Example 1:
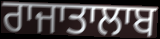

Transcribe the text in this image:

ਰਾਜਾਤਾਲਾਬ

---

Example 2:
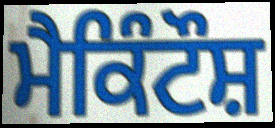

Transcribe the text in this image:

ਮੈਕਿੰਟੌਸ਼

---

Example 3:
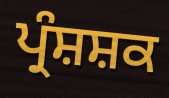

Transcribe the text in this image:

ਪ੍ਰੰਸ਼ਸ਼ਕ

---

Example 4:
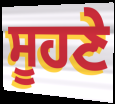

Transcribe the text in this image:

ਸੂਹਣੇ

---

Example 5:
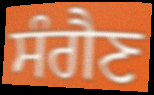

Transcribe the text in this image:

ਸੰਗੈਣ